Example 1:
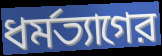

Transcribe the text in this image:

ধর্মত্যাগের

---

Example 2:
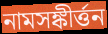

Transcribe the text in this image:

নামসঙ্কীর্ত্তন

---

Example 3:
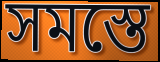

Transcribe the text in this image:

সমস্তে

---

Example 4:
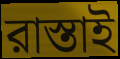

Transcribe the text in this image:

রাস্তাই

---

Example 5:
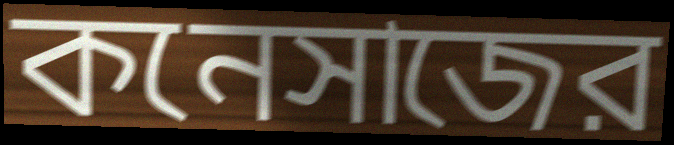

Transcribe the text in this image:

কনেসাজের